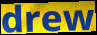
drew